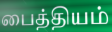
பைத்தியம்